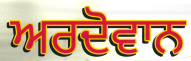
ਅਰਦੋਵਾਨ